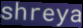
shreya